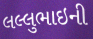
લલ્લુભાઇની